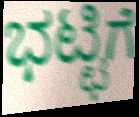
ಭಟ್ಟಿಗೆ